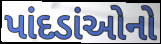
પાંદડાંઓનો